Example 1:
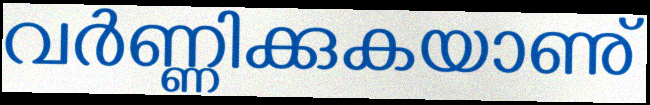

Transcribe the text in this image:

വർണ്ണിക്കുകയാണു്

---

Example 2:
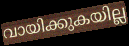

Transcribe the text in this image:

വായിക്കുകയില്ല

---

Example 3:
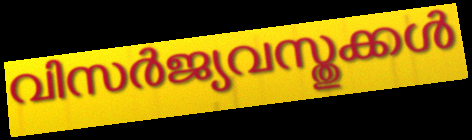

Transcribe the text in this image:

വിസർജ്യവസ്തുക്കൾ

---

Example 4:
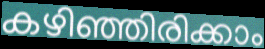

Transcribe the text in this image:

കഴിഞ്ഞിരിക്കാം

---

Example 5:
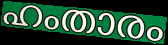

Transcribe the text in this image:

ഹംതാരം